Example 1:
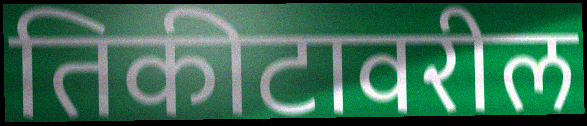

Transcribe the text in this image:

तिकीटावरील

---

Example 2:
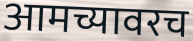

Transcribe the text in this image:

आमच्यावरच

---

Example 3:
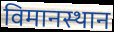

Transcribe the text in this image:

विमानस्थान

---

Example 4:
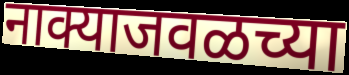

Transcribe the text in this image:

नाक्याजवळच्या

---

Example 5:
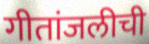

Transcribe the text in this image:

गीतांजलीची